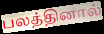
பலத்தினால்